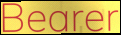
Bearer